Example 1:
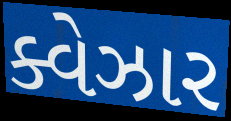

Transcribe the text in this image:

ક્વેઝાર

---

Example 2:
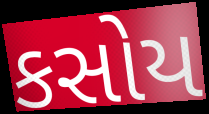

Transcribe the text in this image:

કસોય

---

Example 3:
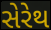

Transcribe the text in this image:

સેરેથ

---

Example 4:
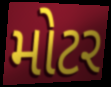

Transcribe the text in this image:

મોટર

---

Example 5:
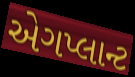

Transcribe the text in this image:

એગપ્લાન્ટ